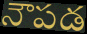
నౌపడ